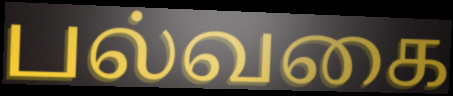
பல்வகை